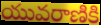
యువరాణికి